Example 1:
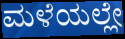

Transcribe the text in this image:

ಮಳೆಯಲ್ಲೇ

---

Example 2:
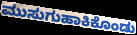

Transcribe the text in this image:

ಮುಸುಗುಹಾಕಿಕೊಂಡು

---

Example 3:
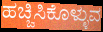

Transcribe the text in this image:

ಹಚ್ಚಿಸಿಕೊಳ್ಳುವ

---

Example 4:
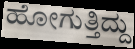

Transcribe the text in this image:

ಹೋಗುತ್ತಿದ್ದು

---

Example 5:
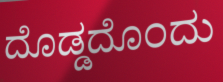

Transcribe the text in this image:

ದೊಡ್ಡದೊಂದು